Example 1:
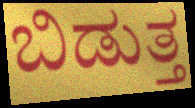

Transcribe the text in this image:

ಬಿಡುತ್ತ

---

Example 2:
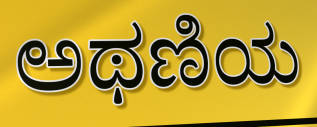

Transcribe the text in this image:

ಅಥಣಿಯ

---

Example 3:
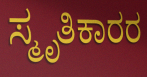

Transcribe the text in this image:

ಸ್ಮೃತಿಕಾರರ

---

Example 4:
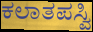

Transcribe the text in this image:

ಕಲಾತಪಸ್ವಿ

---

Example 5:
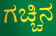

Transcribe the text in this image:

ಗಚ್ಚಿನ